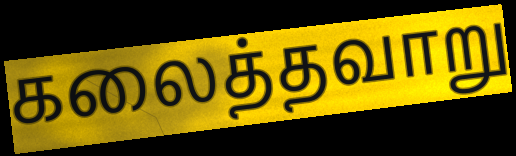
கலைத்தவாறு